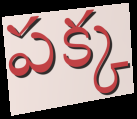
పక్క